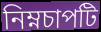
নিম্নচাপটি